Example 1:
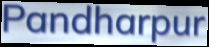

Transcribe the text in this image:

Pandharpur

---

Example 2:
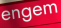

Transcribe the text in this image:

engem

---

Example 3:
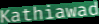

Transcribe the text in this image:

Kathiawad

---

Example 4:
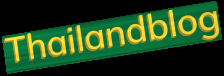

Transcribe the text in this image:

Thailandblog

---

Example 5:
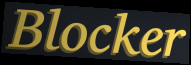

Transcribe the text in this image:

Blocker